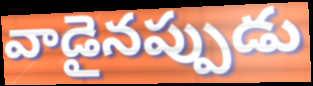
వాడైనప్పుడు